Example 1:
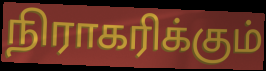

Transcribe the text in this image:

நிராகரிக்கும்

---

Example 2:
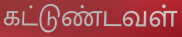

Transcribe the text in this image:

கட்டுண்டவள்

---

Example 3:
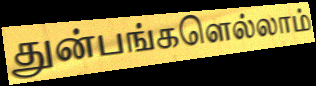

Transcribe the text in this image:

துன்பங்களெல்லாம்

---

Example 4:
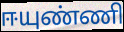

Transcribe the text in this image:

ஈயுண்ணி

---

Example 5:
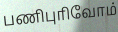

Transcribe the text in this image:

பணிபுரிவோம்